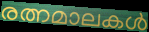
രത്നമാലകൾ